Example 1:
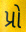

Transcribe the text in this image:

પ્રો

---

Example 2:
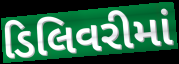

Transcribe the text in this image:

ડિલિવરીમાં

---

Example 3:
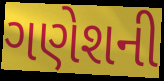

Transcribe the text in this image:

ગણેશની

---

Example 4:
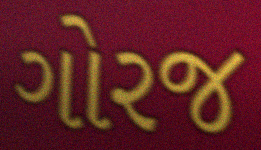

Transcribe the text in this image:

ગોરજ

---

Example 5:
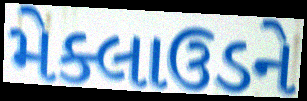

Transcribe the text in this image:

મેક્લાઉડને